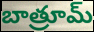
బాత్రూమ్